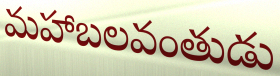
మహాబలవంతుడు